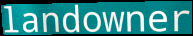
landowner